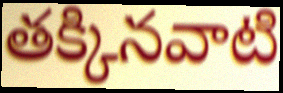
తక్కినవాటి